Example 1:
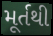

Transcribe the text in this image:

મૂર્તથી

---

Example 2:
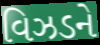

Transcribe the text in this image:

વિઝડને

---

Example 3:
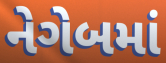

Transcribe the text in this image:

નેગેબમાં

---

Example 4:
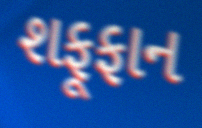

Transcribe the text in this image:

શફૂફાન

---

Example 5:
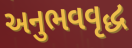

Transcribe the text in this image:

અનુભવવૃદ્ધ